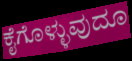
ಕೈಗೊಳ್ಳುವುದೂ